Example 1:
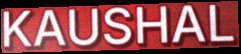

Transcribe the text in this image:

KAUSHAL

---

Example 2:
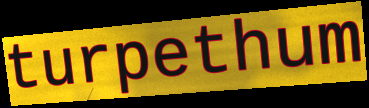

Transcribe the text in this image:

turpethum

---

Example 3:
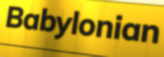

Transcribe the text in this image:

Babylonian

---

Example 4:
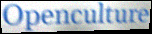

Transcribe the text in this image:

Openculture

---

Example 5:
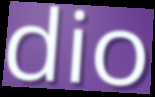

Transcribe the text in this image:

dio